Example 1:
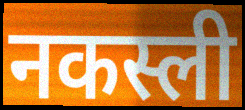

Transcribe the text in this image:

नकस्ली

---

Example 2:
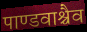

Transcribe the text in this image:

पाण्डवाश्चैव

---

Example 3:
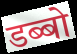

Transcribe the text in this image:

डब्बो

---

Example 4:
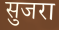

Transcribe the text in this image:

सुजरा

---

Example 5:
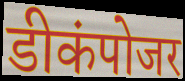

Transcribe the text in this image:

डीकंपोजर